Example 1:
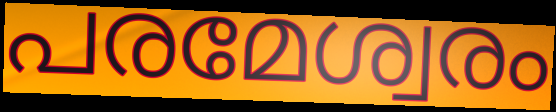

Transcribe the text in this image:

പരമേശ്വരം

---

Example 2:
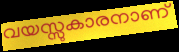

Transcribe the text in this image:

വയസ്സുകാരനാണ്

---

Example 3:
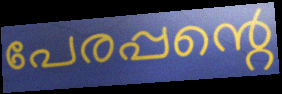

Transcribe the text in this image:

പേരപ്പന്റെ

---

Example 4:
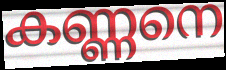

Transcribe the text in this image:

കണ്ണനെ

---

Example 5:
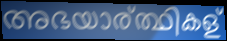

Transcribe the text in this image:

അഭയാര്ത്ഥികള്